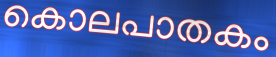
കൊലപാതകം